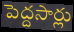
పెద్దసార్లు